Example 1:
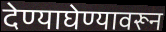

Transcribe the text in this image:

देण्याघेण्यावरून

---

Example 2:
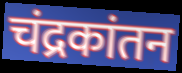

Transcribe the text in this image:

चंद्रकांतन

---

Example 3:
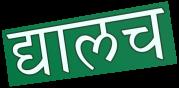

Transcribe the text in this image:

द्यालच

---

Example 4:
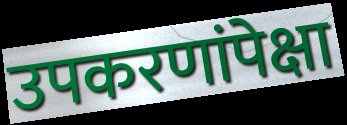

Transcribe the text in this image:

उपकरणांपेक्षा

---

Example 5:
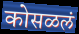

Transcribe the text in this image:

कोसळलं